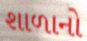
શાળાનો